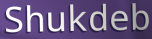
Shukdeb